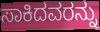
ಸಾಕಿದವರನ್ನು